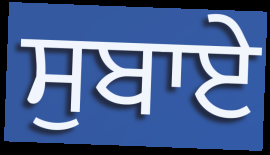
ਸੁਬਾਏ